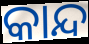
କାନ୍ଦ